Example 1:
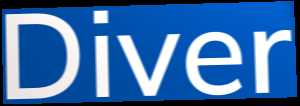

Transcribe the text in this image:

Diver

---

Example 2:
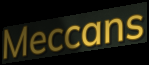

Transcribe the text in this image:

Meccans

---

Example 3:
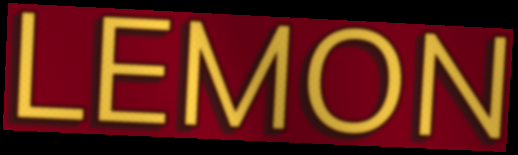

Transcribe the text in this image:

LEMON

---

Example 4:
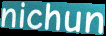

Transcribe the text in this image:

nichun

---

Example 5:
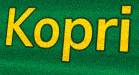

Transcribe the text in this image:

Kopri